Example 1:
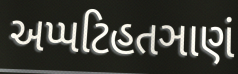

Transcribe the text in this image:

અપ્પટિહતઞાણં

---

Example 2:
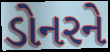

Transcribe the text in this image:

ડોનરને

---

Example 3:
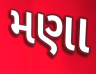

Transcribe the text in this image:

મણા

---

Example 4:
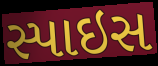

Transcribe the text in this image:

સ્પાઇસ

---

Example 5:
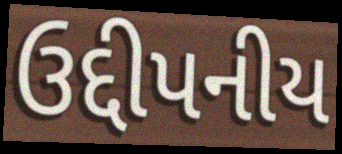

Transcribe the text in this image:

ઉદ્દીપનીય